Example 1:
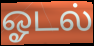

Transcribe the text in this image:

ஓடல்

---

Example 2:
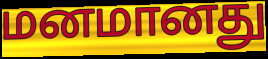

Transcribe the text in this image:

மனமானது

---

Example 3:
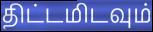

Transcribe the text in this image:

திட்டமிடவும்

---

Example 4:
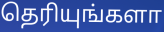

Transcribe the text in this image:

தெரியுங்களா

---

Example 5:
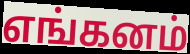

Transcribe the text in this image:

எங்கனம்